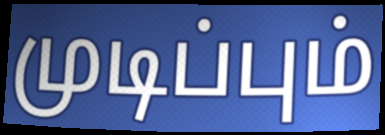
முடிப்பும்